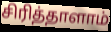
சிரித்தாளாம்